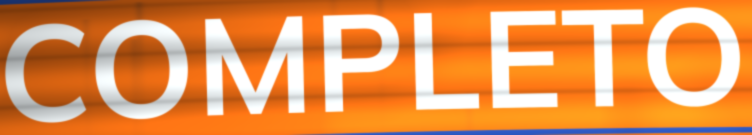
COMPLETO